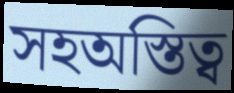
সহঅস্তিত্ব